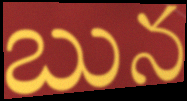
బున